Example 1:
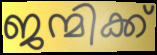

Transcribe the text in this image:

ജന്മിക്ക്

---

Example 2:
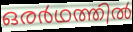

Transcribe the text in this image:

ഒരർഥത്തിൽ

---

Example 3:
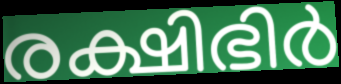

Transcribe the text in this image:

രക്ഷിഭിർ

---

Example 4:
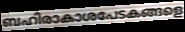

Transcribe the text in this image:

ബഹിരാകാശപേടകങ്ങളെ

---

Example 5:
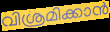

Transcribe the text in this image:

വിശ്രമിക്കാൻ